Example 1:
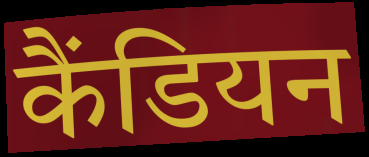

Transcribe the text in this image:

कैंडियन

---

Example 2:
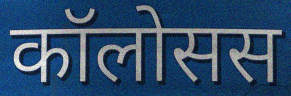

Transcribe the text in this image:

कॉलोसस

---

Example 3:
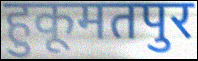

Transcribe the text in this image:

हुकूमतपुर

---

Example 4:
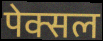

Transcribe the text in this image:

पेक्सल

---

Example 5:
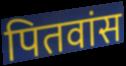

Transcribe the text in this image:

पितवांस